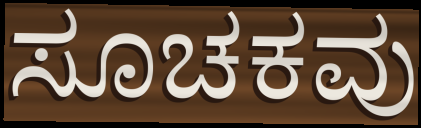
ಸೂಚಕವು